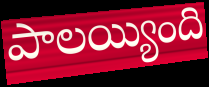
పాలయ్యింది